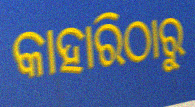
କାହାରିଠାରୁ